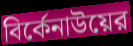
বির্কেনাউয়ের